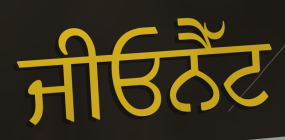
ਜੀਓਨੈੱਟ